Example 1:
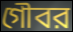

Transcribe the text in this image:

গৌবর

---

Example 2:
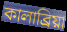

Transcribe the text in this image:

কালাব্রিয়া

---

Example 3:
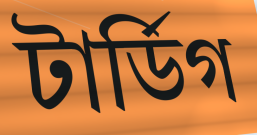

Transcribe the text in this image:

টার্ডিগ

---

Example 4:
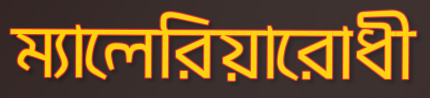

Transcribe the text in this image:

ম্যালেরিয়ারোধী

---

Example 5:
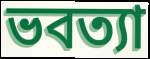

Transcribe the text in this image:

ভবত্যা